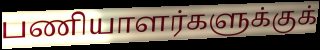
பணியாளர்களுக்குக்